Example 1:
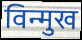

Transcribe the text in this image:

विन्मुख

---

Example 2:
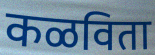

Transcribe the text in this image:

कळविता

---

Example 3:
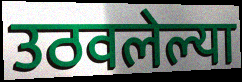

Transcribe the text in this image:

उठवलेल्या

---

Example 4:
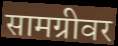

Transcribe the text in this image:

सामग्रीवर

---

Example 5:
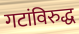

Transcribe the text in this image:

गटांविरुद्ध